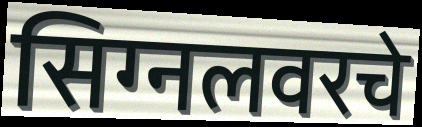
सिग्नलवरचे